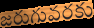
జరుగువరకు